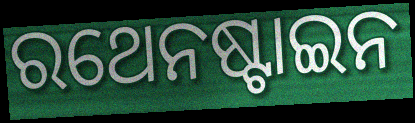
ରଥେନଷ୍ଟାଇନ